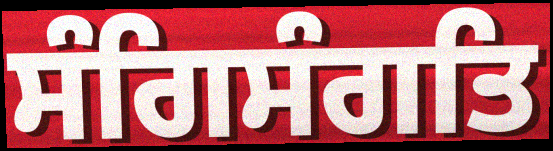
ਸੰਗਿਸੰਗਤਿ